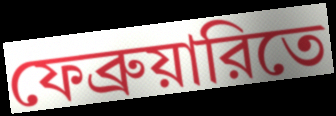
ফেব্রুয়ারিতে